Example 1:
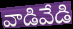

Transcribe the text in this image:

వాడివేడి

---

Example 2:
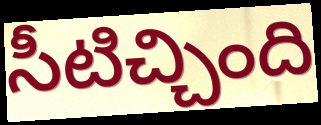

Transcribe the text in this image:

సీటిచ్చింది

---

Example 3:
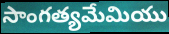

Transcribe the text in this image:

సాంగత్యమేమియు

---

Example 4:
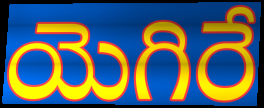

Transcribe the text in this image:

యెగిరే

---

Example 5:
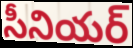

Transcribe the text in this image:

సీనియర్